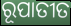
ରୂପାତୀତ